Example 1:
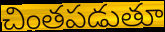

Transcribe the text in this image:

చింతపడుతూ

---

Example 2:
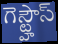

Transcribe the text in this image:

గెస్ట్హౌస్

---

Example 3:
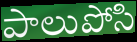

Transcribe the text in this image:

పాలుపోసి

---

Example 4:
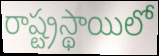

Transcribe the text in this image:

రాష్ట్రస్థాయిలో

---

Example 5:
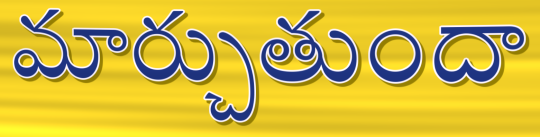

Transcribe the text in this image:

మార్చుతుందా